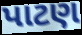
પાટણ